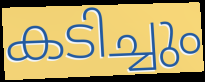
കടിച്ചും